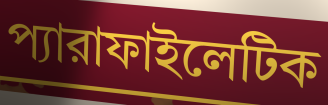
প্যারাফাইলেটিক